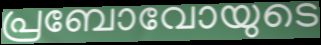
പ്രബോവോയുടെ